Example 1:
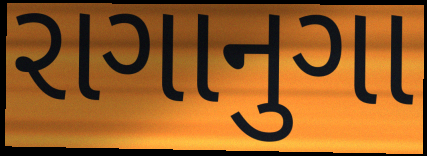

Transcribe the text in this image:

રાગાનુગા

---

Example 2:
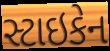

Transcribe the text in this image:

સ્ટાઇકેન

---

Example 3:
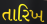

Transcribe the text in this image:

તારિખ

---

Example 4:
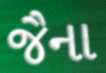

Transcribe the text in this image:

જૈના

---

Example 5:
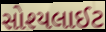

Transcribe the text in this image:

સોશ્યલાઈટ